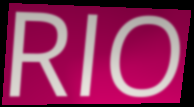
RIO